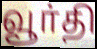
வூர்தி